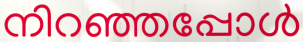
നിറഞ്ഞപ്പോൾ